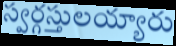
స్వర్గస్తులయ్యారు